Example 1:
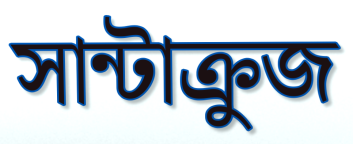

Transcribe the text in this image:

সান্টাক্রুজ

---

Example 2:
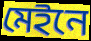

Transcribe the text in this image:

মেইনে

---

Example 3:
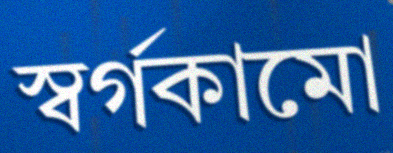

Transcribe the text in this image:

স্বর্গকামো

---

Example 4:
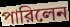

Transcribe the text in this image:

পারিলেন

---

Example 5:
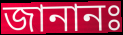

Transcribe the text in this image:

জানানঃ